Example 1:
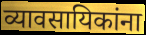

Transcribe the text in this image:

व्यावसायिकांना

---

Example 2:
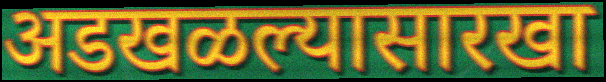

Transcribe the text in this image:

अडखळल्यासारखा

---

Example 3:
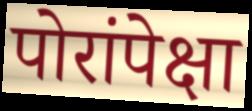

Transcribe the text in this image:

पोरांपेक्षा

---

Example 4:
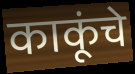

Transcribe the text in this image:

काकूंचे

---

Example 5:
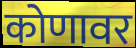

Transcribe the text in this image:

कोणावर